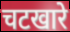
चटखारे